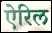
ऐरिल